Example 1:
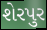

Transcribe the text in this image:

શેરપુર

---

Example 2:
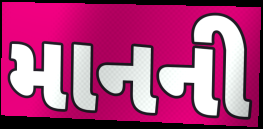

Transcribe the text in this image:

માનની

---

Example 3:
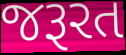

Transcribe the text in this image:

જરૂરત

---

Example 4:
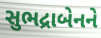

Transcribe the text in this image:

સુભદ્રાબેનને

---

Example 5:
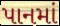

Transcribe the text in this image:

પાનમાં